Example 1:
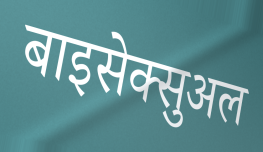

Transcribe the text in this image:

बाइसेक्सुअल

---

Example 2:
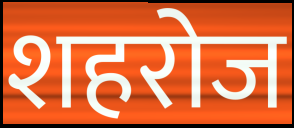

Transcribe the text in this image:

शहरोज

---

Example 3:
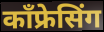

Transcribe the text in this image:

कॉंफ्रेसिंग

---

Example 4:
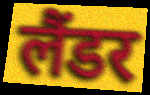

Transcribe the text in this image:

लैंडर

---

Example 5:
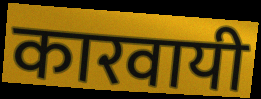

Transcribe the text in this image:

कारवायी